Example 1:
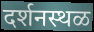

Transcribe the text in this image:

दर्शनस्थळ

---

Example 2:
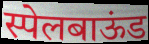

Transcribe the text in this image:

स्पेलबाऊंड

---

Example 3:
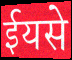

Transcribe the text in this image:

ईयसे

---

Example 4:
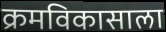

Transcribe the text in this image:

क्रमविकासाला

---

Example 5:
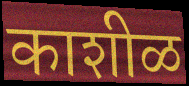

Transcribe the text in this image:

काशीळ